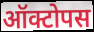
ऑक्टोपस